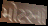
મોટરનાં